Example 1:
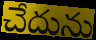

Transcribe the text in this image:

చేదును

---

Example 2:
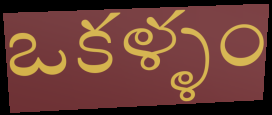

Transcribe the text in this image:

ఒకళ్ళం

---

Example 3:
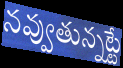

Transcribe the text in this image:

నవ్వుతున్నట్టే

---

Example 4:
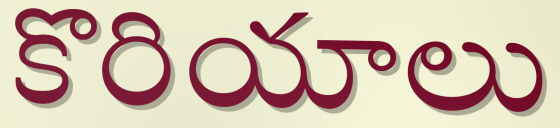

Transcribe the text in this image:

కొరియాలు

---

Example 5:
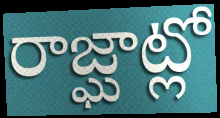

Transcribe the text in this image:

రాజ్ఘాట్లో